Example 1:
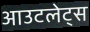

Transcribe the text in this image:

आउटलेट्स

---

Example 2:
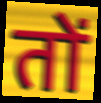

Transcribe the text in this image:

तों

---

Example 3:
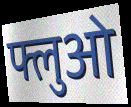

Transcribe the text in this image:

फ्लुओ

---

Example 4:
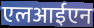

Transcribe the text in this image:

एलआईएन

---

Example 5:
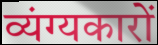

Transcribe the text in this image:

व्‍यंग्‍यकारों